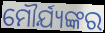
ମୌର୍ଯ୍ୟଙ୍କର